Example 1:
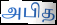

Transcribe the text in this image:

அபித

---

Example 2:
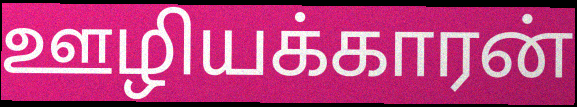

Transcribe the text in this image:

ஊழியக்காரன்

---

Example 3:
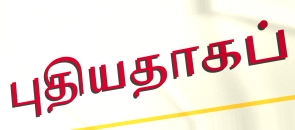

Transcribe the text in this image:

புதியதாகப்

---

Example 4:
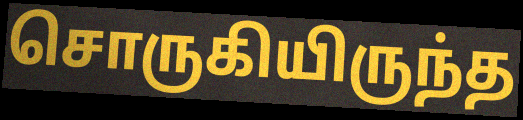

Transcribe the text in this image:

சொருகியிருந்த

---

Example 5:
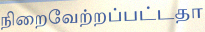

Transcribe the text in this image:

நிறைவேற்றப்பட்டதா